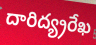
దారిద్య్రరేఖ